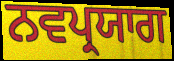
ਨਵਪ੍ਰਯਾਗ